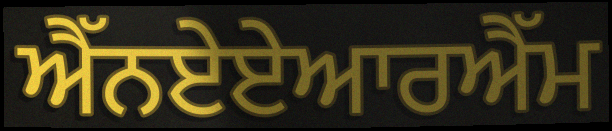
ਐੱਨਏਏਆਰਐੱਮ